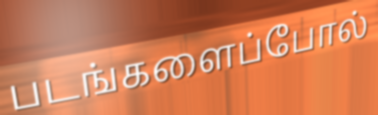
படங்களைப்போல்